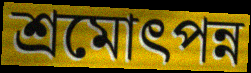
শ্রমোৎপন্ন